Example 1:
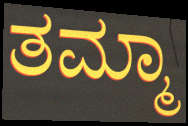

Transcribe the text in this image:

ತಮ್ಮಾ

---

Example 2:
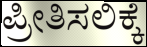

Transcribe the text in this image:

ಪ್ರೀತಿಸಲಿಕ್ಕೆ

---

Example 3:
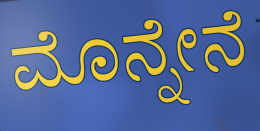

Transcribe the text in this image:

ಮೊನ್ನೇನೆ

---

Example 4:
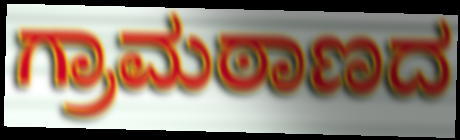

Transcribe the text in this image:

ಗ್ರಾಮಠಾಣದ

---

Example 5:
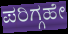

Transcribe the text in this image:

ಪರಿಗ್ಗಹೇ